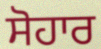
ਸੋਹਾਰ